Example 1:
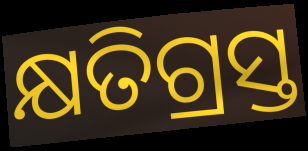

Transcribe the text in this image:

କ୍ଷତିଗ୍ରସ୍ତ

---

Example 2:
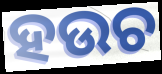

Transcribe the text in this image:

ହଉଚ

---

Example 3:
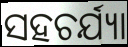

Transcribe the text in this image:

ସହଚର୍ଯ୍ୟା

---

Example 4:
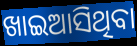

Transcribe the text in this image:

ଖାଇଆସିଥିବା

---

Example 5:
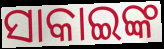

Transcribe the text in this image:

ସାକାଇଙ୍କ